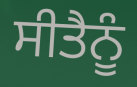
ਸੀਤੈਨੂੰ